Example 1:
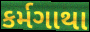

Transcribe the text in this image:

કર્મગાથા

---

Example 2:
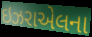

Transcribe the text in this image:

ઇઝરાએલના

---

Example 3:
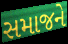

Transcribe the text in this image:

સમાજને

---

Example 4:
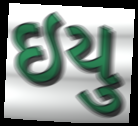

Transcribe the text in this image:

ઇયુ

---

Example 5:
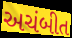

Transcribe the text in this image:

અચંબીત